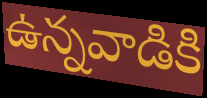
ఉన్నవాడికి